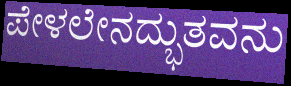
ಪೇಳಲೇನದ್ಭುತವನು